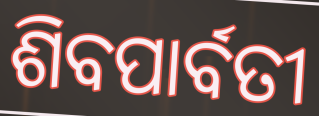
ଶିବପାର୍ବତୀ